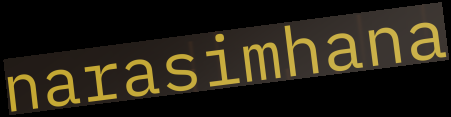
narasimhana